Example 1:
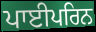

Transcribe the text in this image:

ਪਾਈਪਰਿਨ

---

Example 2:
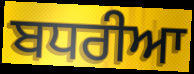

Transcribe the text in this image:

ਬਧਰੀਆ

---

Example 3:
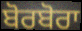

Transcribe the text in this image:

ਬੋਰਬੋਰਾ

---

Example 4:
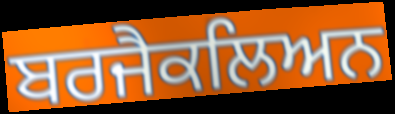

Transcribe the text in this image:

ਬਰਜੈਕਲਿਅਨ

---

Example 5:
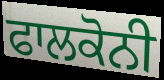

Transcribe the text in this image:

ਫਾਲਕੋਨੀ